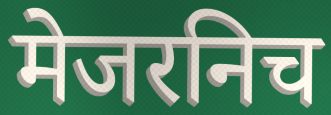
मेजरनिच